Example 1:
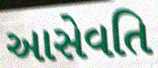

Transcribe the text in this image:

આસેવતિ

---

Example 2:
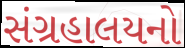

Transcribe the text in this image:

સંગ્રહાલયનો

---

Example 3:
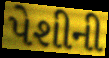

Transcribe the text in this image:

પેશીની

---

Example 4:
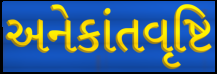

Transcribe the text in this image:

અનેકાંતવૃષ્ટિ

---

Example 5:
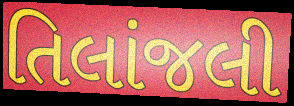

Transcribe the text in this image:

તિલાંજલી